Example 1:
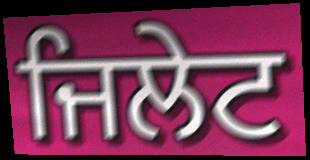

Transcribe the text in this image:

ਜਿਲੇਟ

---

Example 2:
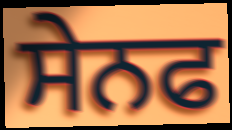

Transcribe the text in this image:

ਸੇਨਫ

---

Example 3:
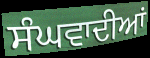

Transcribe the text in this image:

ਸੰਘਵਾਦੀਆਂ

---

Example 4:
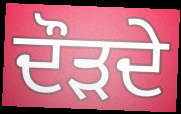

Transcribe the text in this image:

ਦੌੜਦੇ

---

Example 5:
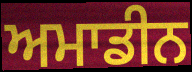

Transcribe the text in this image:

ਅਮਾਡੀਨ